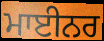
ਮਾਈਨਰ